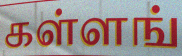
கள்ளங்